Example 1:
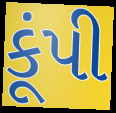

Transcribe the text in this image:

કૂંપી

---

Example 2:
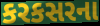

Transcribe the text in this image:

કરકસરના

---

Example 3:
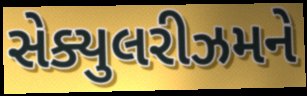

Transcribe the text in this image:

સેક્યુલરીઝમને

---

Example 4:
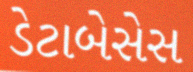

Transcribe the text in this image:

ડેટાબેસેસ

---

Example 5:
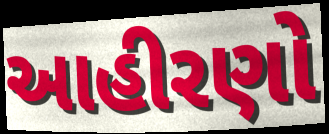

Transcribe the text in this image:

આહીરણો